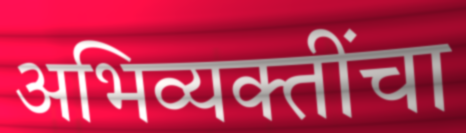
अभिव्यक्तींचा